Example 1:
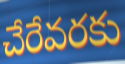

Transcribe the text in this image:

చేరేవరకు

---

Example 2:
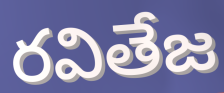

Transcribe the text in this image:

రవితేజ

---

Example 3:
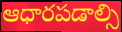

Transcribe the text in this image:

ఆధారపడాల్సి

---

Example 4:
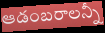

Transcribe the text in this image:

ఆడంబరాలన్నీ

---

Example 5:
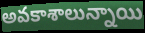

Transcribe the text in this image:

అవకాశాలున్నాయి